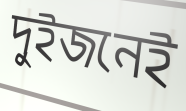
দুইজনেই